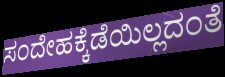
ಸಂದೇಹಕ್ಕೆಡೆಯಿಲ್ಲದಂತೆ